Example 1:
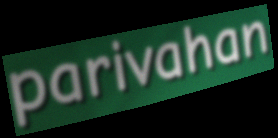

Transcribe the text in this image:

parivahan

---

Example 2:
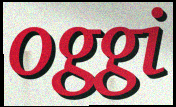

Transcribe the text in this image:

oggi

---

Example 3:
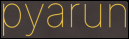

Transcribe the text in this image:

pyarun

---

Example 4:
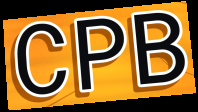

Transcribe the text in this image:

CPB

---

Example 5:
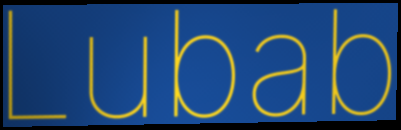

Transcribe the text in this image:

Lubab